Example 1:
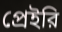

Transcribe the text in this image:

প্রেইরি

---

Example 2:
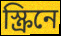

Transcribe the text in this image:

স্ক্রিনে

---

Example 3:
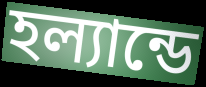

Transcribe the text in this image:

হল্যান্ডে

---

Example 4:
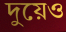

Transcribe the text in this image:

দুয়েও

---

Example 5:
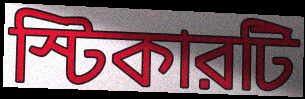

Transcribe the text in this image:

স্টিকারটি